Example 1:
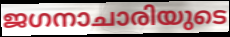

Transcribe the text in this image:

ജഗനാചാരിയുടെ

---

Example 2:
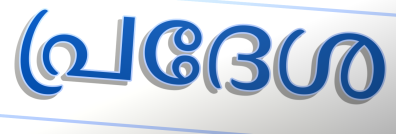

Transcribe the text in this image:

പ്രദേശ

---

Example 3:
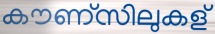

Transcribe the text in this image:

കൗണ്സിലുകള്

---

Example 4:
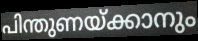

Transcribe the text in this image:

പിന്തുണയ്ക്കാനും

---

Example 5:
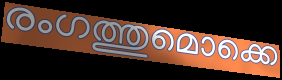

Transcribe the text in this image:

രംഗത്തുമൊക്കെ